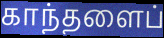
காந்தளைப்